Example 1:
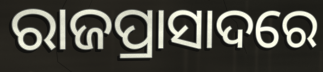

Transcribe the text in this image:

ରାଜପ୍ରାସାଦରେ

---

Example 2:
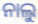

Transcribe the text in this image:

ନାଲୁ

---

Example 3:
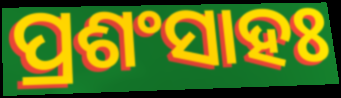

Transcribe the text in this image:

ପ୍ରଶଂସାହଃ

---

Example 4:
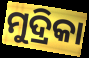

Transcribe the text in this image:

ମୁଦ୍ରିକା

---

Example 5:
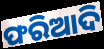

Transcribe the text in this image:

ଫରିଆଦି